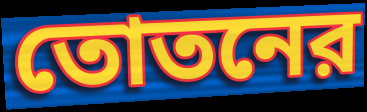
তোতনের